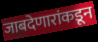
जाबदेणारांकडून